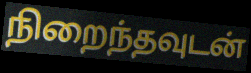
நிறைந்தவுடன்